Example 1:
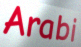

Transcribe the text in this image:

Arabi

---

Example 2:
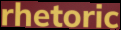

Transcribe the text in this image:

rhetoric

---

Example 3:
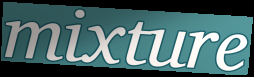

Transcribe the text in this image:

mixture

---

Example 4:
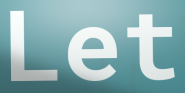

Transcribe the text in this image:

Let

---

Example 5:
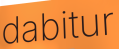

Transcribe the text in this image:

dabitur